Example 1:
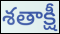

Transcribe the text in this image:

శతాక్షీ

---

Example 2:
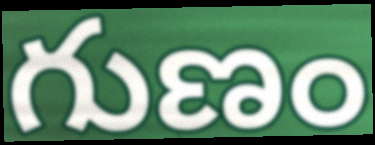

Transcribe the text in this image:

గుణం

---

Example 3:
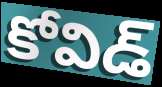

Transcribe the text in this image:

కోవిడ్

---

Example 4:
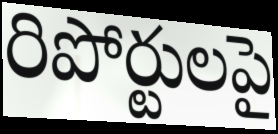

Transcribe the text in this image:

రిపోర్టులపై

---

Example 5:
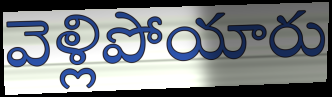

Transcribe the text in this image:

వెళ్లిపోయారు